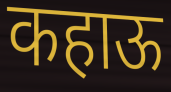
कहाऊ